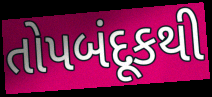
તોપબંદૂકથી